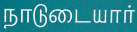
நாடுடையார்